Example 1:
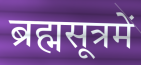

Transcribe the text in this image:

ब्रह्मसूत्रमें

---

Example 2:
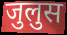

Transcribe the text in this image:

जुलुस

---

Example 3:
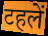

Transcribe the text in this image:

टहलें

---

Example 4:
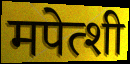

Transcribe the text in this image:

मपेत्शी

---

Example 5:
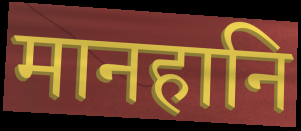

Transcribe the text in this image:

मानहानि